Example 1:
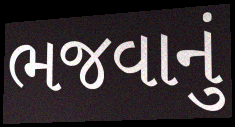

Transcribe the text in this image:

ભજવાનું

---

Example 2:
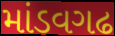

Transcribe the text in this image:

માંડવગઢ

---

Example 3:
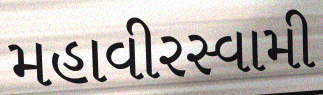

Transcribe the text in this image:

મહાવીરસ્વામી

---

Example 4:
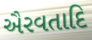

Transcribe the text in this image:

ઐરવતાદિ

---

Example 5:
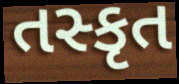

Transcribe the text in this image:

તસ્કૃત